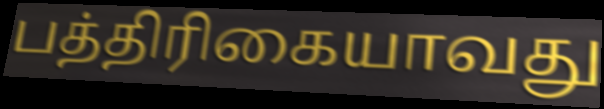
பத்திரிகையாவது